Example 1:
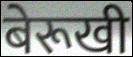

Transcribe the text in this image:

बेरूखी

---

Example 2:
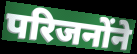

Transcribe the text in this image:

परिजनोंने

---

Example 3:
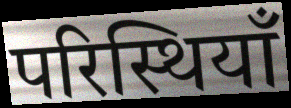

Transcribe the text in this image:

परिस्थियाँ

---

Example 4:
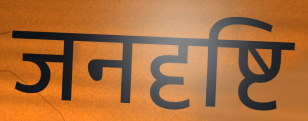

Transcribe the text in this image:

जनदृष्टि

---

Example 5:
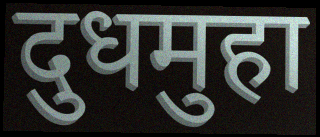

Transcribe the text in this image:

दुधमुहा